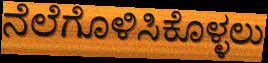
ನೆಲೆಗೊಳಿಸಿಕೊಳ್ಳಲು